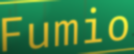
Fumio